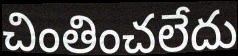
చింతించలేదు